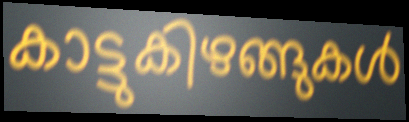
കാട്ടുകിഴങ്ങുകൾ